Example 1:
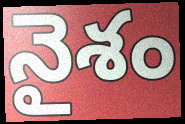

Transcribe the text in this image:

నైశం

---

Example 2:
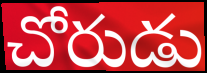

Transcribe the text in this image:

చోరుడు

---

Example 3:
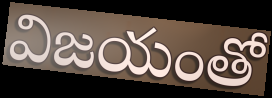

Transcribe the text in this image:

విజయంతో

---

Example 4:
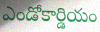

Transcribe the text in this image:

ఎండోకార్డియం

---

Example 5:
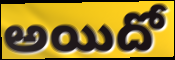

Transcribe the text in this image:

అయిదో